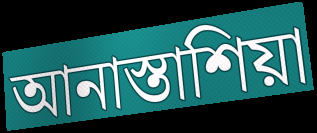
আনাস্তাশিয়া